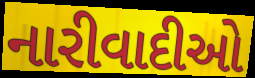
નારીવાદીઓ